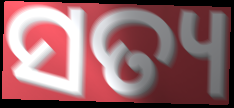
ସତ୍ୟ